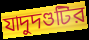
যাদুদণ্ডটির